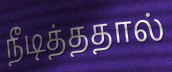
நீடித்ததால்